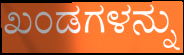
ಖಂಡಗಳನ್ನು